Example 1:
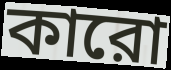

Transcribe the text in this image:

কারো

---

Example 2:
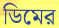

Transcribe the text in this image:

ডিমের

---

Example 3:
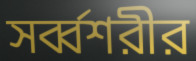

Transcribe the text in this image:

সর্ব্বশরীর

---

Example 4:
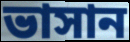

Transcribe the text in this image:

ভাসান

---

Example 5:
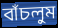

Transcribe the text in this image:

বাঁচলুম